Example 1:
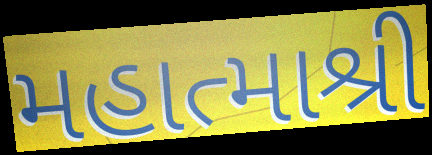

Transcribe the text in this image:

મહાત્માશ્રી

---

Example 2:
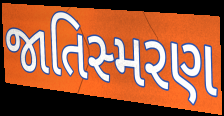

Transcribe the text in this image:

જાતિસ્મરણ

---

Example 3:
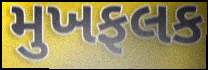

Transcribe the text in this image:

મુખફલક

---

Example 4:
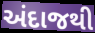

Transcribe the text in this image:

અંદાજથી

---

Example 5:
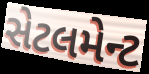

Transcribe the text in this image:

સેટલમેન્ટ